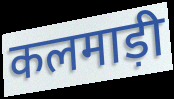
कलमाड़ी